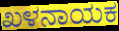
ಖಳನಾಯಕ